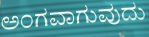
ಅಂಗವಾಗುವುದು